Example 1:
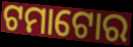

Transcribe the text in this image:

ଟମାଟୋର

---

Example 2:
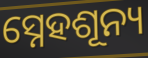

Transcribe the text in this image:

ସ୍ନେହଶୂନ୍ୟ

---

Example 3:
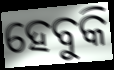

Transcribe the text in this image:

ହେବୁକି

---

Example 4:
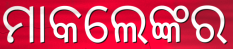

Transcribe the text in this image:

ମାକଲେଙ୍କର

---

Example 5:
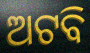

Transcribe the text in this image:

ଅଟବି